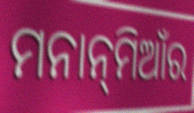
ମନାନ୍‌ମିଆଁର